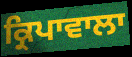
ਕ੍ਰਿਪਾਵਾਲਾ